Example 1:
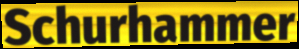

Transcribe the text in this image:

Schurhammer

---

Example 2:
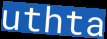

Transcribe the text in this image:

uthta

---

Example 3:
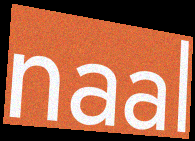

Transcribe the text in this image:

naal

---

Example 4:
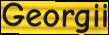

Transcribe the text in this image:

Georgii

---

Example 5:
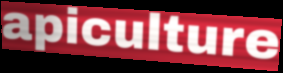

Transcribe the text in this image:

apiculture